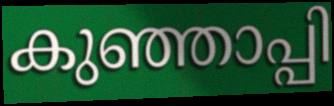
കുഞ്ഞാപ്പി